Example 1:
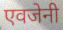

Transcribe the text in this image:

एवजेनी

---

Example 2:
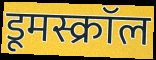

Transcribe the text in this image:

डूमस्क्रॉल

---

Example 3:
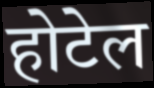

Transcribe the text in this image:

होटेल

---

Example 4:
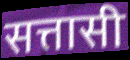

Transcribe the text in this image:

सत्तासी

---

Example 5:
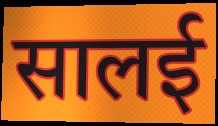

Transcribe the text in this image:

सालई